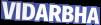
VIDARBHA